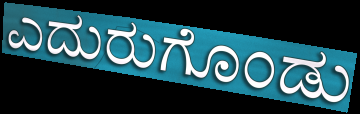
ಎದುರುಗೊಂಡು